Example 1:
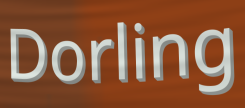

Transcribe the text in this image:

Dorling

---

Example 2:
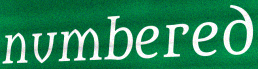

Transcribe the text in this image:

numbered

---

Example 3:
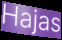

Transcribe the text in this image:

Hajas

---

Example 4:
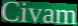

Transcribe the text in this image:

Civam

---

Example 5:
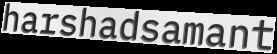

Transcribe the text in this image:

harshadsamant